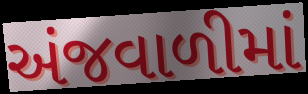
અંજવાળીમાં